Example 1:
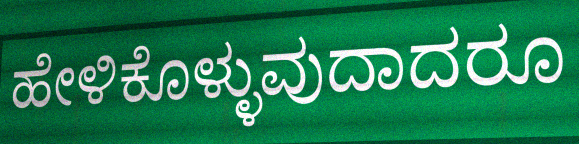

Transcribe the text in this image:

ಹೇಳಿಕೊಳ್ಳುವುದಾದರೂ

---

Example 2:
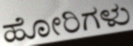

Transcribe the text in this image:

ಹೋರಿಗಳು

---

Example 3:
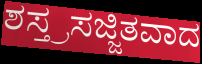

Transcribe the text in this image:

ಶಸ್ತ್ರಸಜ್ಜಿತವಾದ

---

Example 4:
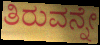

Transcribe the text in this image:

ತಿರುವನ್ನೇ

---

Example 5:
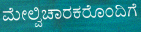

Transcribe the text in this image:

ಮೇಲ್ವಿಚಾರಕರೊಂದಿಗೆ